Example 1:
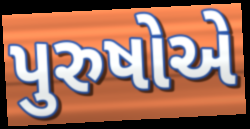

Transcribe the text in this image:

પુરુષોએ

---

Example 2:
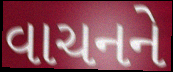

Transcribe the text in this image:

વાચનને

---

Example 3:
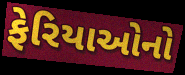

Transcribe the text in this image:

ફેરિયાઓનો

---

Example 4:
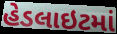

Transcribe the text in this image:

હેડલાઇટમાં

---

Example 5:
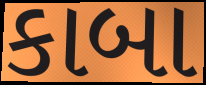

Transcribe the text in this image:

કાબા